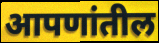
आपणांतील